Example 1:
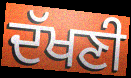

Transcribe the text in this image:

ਦੱਖਣੀ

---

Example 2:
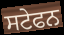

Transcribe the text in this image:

ਸਟੇਫਨ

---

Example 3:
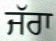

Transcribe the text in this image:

ਜੱਰਾ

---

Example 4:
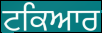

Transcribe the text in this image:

ਟਕਿਆਰ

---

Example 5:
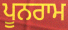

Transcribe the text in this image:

ਪੂਨਰਾਮ